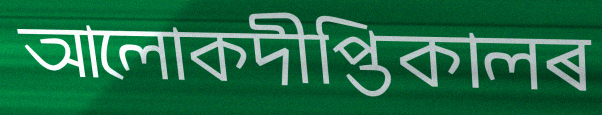
আলোকদীপ্তিকালৰ